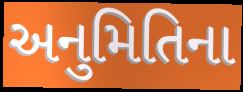
અનુમિતિના